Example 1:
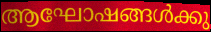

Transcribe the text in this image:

ആഘോഷങ്ങൾക്കു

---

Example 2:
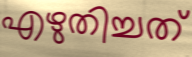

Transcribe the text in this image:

എഴുതിച്ചത്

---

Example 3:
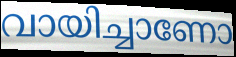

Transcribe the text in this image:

വായിച്ചാണോ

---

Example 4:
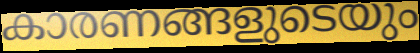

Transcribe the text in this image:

കാരണങ്ങളുടെയും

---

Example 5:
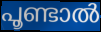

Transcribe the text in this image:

പൂണ്ടാൽ